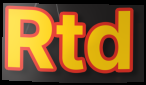
Rtd